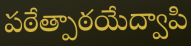
పఠేత్పాఠయేద్వాపి